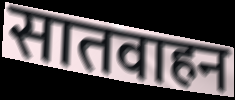
सातवाहन